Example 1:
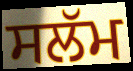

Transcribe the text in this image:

ਸਲੱਮ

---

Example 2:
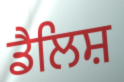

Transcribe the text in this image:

ਡੈਲਿਸ਼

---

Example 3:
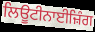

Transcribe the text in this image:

ਲਿਊਟੀਨਾਈਜ਼ਿੰਗ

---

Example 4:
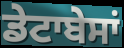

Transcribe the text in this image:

ਡੇਟਾਬੇਸਾਂ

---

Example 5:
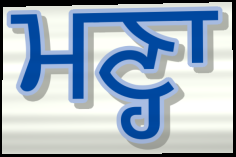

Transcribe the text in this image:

ਮਣ੍ਹਾ